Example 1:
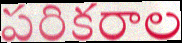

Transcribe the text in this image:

పరికరాల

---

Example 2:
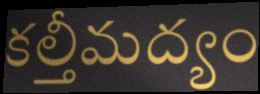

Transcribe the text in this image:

కల్తీమద్యం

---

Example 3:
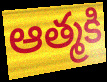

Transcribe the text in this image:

ఆత్మకి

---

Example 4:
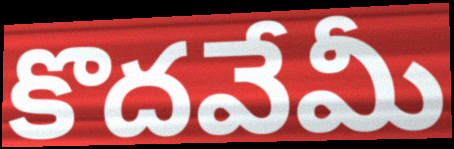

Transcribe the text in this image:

కొదవేమీ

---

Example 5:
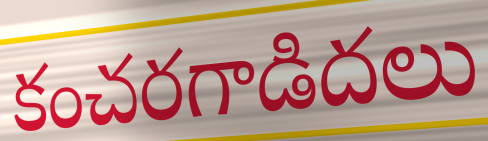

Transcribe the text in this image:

కంచరగాడిదలు